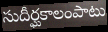
సుదీర్ఘకాలంపాటు